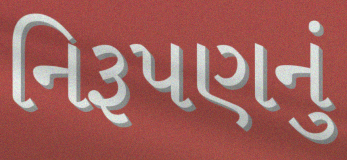
નિરૂપણનું